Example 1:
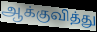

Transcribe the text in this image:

ஆக்குவித்து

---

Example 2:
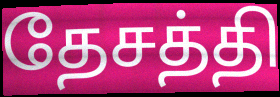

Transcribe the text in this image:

தேசத்தி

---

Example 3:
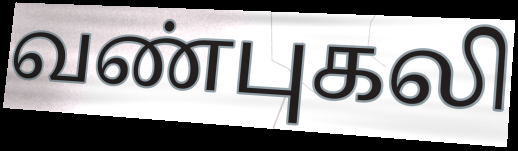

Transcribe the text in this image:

வண்புகலி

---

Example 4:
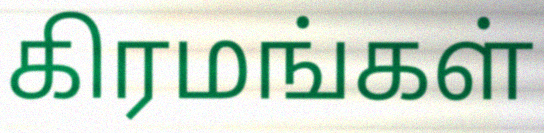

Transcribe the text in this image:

கிரமங்கள்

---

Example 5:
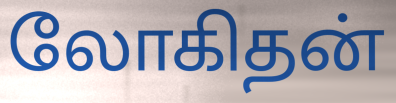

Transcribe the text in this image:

லோகிதன்